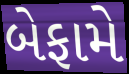
બેફામે